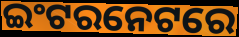
ଇଂଟରନେଟରେ